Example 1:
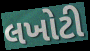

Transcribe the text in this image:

લખોટી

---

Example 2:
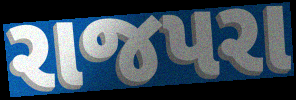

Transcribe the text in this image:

રાજપરા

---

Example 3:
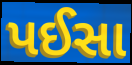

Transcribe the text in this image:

પઈસા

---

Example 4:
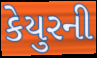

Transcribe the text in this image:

કેયુરની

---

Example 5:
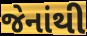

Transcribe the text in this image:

જેનાંથી